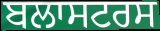
ਬਲਾਸਟਰਸ